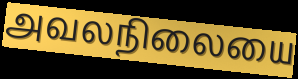
அவலநிலையை